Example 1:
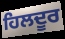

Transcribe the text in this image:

ਹਿਲਦੂਰ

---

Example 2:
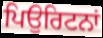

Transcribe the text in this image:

ਪਿਉਰਿਟਨਾਂ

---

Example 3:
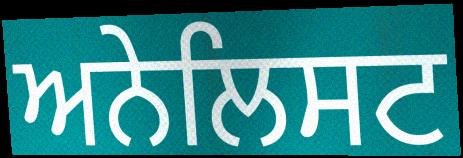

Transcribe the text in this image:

ਅਨੇਲਿਸਟ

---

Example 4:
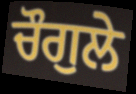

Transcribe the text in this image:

ਚੌਗੁਲੇ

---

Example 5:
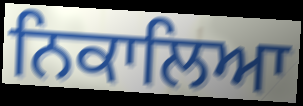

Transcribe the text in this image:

ਨਿਕਾਲਿਆ